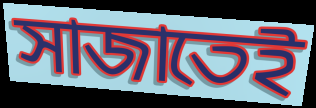
সাজাতেই